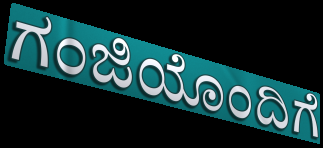
ಗಂಜಿಯೊಂದಿಗೆ